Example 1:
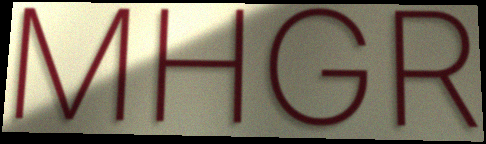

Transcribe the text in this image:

MHGR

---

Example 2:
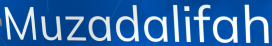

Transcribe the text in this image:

Muzadalifah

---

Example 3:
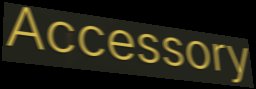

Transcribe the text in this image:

Accessory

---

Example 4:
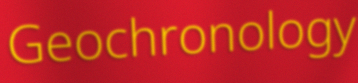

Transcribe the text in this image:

Geochronology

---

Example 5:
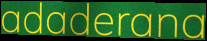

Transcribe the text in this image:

adaderana